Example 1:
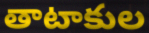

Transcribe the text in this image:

తాటాకుల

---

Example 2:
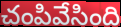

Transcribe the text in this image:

చంపివేసింది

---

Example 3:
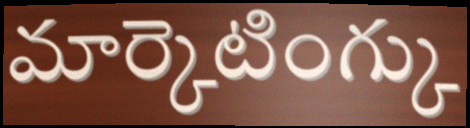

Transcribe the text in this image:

మార్కెటింగ్కు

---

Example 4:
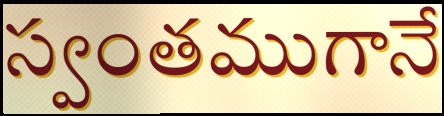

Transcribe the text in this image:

స్వంతముగానే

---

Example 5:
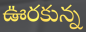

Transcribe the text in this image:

ఊరకున్న